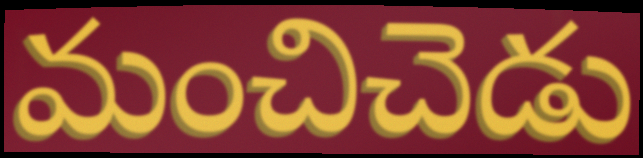
మంచిచెడు